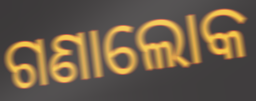
ଗଣାଲୋକ